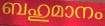
ബഹുമാനം